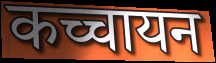
कच्चायन